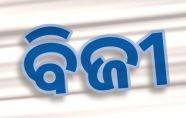
ବିଜୀ